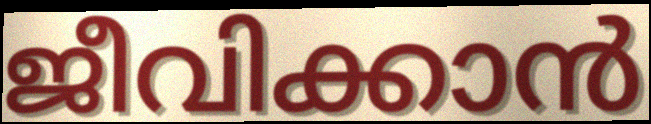
ജീവിക്കാൻ